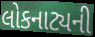
લોકનાટ્યની